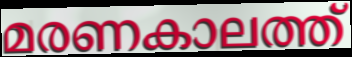
മരണകാലത്ത്